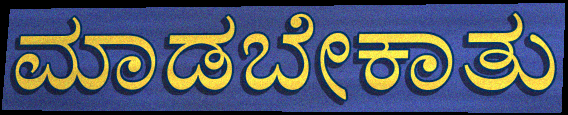
ಮಾಡಬೇಕಾತು